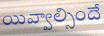
యివ్వాల్సిందే